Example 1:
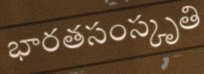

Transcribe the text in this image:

భారతసంస్కృతి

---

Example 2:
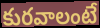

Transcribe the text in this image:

కురవాలంటే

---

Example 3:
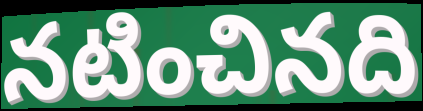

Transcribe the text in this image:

నటించినది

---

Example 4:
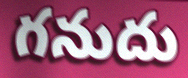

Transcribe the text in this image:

గనుదు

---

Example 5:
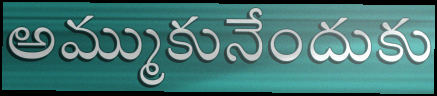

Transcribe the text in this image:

అమ్ముకునేందుకు